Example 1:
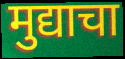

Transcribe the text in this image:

मुद्याचा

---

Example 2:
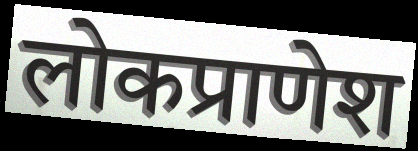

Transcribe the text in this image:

लोकप्राणेश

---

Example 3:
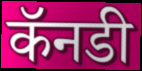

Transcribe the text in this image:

कॅनडी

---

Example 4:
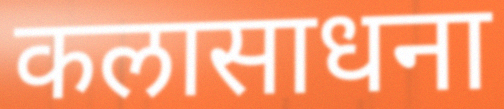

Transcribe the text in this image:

कलासाधना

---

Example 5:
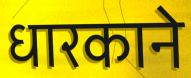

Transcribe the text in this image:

धारकाने